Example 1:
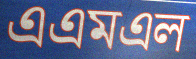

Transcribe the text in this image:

এএমএল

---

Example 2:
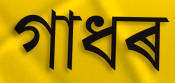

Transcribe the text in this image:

গাধৰ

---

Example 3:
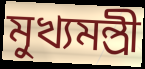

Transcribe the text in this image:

মুখ্যমন্ত্ৰী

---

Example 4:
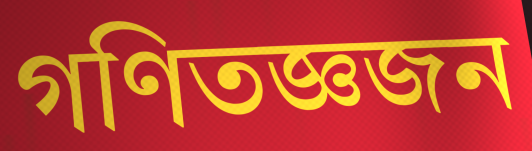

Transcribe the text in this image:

গণিতজ্ঞজন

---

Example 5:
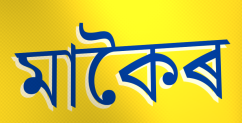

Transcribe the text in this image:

মাকৈৰ